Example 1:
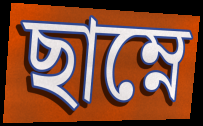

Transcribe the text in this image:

ছাম্নে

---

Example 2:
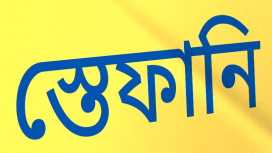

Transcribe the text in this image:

স্তেফানি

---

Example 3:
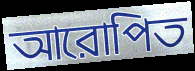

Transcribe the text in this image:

আরোপিত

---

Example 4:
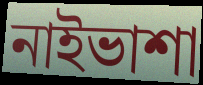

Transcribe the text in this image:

নাইভাশা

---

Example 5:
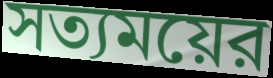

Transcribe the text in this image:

সত্যময়ের